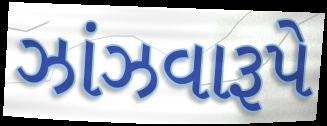
ઝાંઝવારૂપે